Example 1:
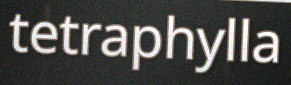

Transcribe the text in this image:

tetraphylla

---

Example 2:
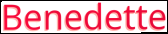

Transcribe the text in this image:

Benedette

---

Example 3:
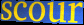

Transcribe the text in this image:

scour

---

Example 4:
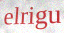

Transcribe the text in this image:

elrigu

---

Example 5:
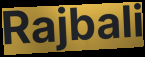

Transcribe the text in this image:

Rajbali